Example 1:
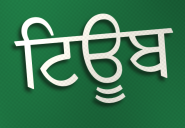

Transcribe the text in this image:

ਟਿਊੂਬ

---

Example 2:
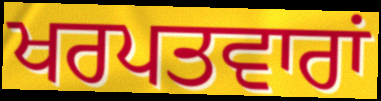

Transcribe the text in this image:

ਖਰਪਤਵਾਰਾਂ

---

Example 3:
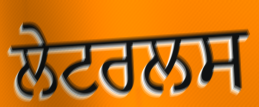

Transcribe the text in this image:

ਲੇਟਰਲਸ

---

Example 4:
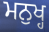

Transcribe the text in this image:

ਮਨੁਖ੍ਹ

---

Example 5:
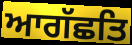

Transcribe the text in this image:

ਆਗੱਛਤਿ